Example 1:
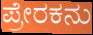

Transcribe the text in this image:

ಪ್ರೇರಕನು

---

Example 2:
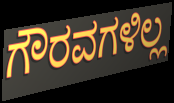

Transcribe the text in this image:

ಗೌರವಗಳಿಲ್ಲ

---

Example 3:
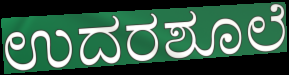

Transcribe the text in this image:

ಉದರಶೂಲೆ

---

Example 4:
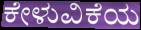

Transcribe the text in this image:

ಕೇಳುವಿಕೆಯ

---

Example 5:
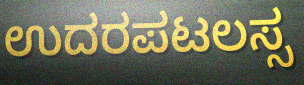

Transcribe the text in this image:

ಉದರಪಟಲಸ್ಸ